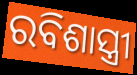
ରବିଶାସ୍ତ୍ରୀ